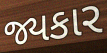
જ્યકાર